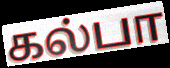
கல்பா